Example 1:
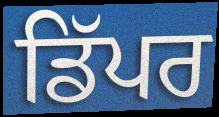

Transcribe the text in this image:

ਡਿੱਪਰ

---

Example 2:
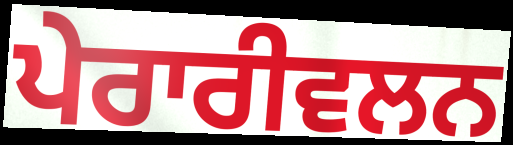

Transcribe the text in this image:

ਪੇਰਾਰੀਵਲਨ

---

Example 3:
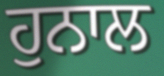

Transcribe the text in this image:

ਹੁਨਾਲ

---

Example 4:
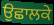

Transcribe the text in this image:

ਉਛਾਲਕੇ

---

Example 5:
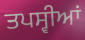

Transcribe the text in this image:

ਤਪਸ੍ਵੀਆਂ